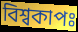
বিশ্বকাপঃ